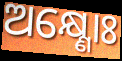
ଅକ୍ଷ୍ଣୋଃ